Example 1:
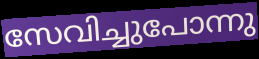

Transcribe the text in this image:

സേവിച്ചുപോന്നു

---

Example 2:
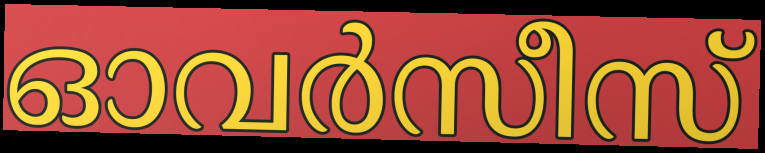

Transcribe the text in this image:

ഓവർസീസ്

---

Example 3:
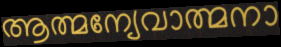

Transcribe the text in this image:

ആത്മന്യേവാത്മനാ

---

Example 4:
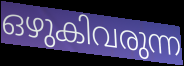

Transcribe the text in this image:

ഒഴുകിവരുന്ന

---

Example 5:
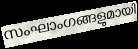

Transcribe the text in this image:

സംഘാംഗങ്ങളുമായി